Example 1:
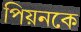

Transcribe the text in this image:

পিয়নকে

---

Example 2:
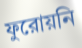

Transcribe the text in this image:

ফুরোয়নি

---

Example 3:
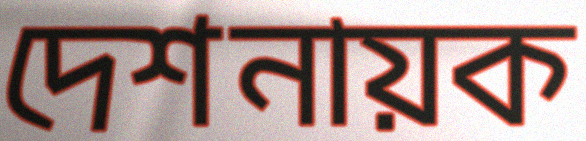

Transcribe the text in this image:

দেশনায়ক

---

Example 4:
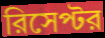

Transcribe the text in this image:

রিসেপ্টর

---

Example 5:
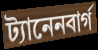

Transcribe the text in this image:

ট্যানেনবার্গ